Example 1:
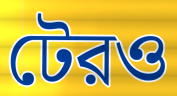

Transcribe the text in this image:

টেরও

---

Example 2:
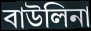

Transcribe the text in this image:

বাউলিনা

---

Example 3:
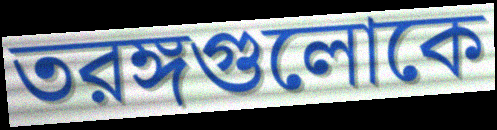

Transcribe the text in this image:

তরঙ্গগুলোকে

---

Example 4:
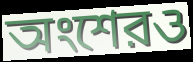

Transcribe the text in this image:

অংশেরও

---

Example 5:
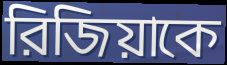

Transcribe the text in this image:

রিজিয়াকে